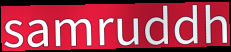
samruddh